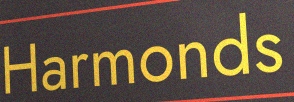
Harmonds